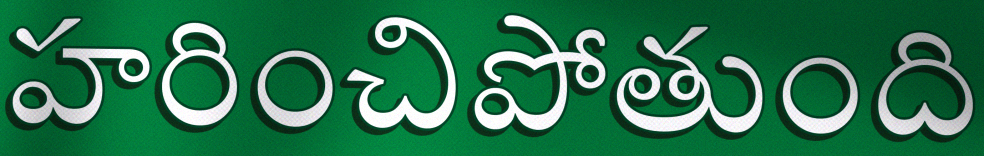
హరించిపోతుంది